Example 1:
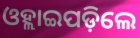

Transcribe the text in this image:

ଓହ୍ଲାଇପଡ଼ିଲେ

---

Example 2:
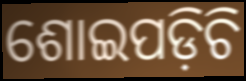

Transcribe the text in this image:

ଶୋଇପଡ଼ିଚି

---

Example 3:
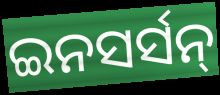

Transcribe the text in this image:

ଇନସର୍ସନ୍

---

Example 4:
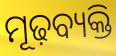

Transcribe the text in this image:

ମୂଢ଼ବ୍ୟକ୍ତି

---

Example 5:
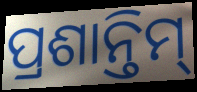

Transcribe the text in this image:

ପ୍ରଶାନ୍ତିମ୍